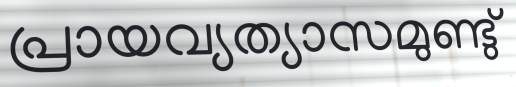
പ്രായവ്യത്യാസമുണ്ടു്